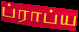
ப்ராப்ய